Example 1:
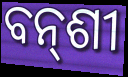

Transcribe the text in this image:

ବନ୍‌ଶୀ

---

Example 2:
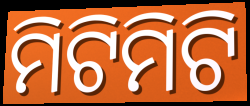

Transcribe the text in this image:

ମିଟିମିଟି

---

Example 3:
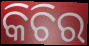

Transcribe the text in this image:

କିଚିର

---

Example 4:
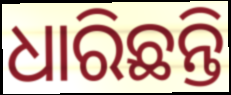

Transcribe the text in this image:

ଧାରିଛନ୍ତି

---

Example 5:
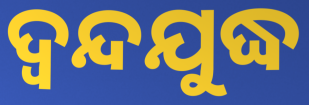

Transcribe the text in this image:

ଦ୍ୱନ୍ଦଯୁଦ୍ଧ